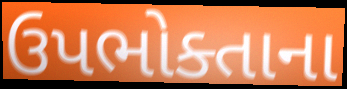
ઉપભોક્તાના